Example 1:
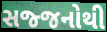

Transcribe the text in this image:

સજ્જનોથી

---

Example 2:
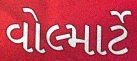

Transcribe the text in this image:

વોલ્માર્ટે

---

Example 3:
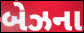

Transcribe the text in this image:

બેઝના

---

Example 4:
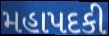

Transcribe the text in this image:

મહાપદકી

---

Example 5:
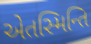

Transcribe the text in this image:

એતસ્મિન્તિ